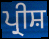
ਪ੍ਰੀਸ਼